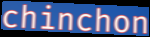
chinchon